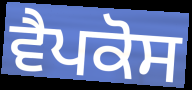
ਵੈਪਕੋਸ